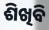
ଶିଖିବି